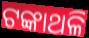
ଟଙ୍କାଥଳି